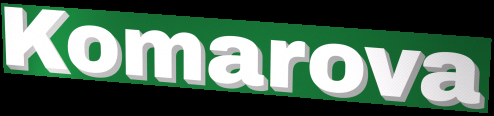
Komarova